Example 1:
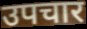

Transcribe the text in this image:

उपचार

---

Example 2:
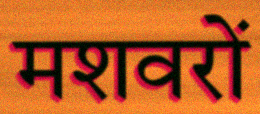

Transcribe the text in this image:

मशवरों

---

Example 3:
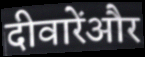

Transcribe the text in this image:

दीवारेंऔर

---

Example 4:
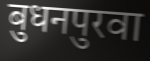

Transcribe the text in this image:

बुधनपुरवा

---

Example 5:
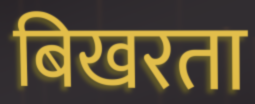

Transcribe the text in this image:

बिखरता